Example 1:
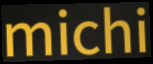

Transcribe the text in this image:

michi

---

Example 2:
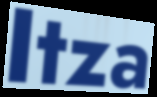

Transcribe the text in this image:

Itza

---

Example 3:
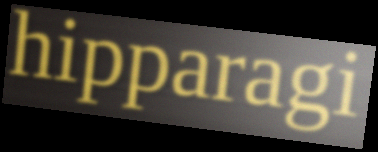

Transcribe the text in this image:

hipparagi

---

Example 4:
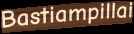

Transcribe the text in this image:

Bastiampillai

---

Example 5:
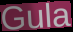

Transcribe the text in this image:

Gula